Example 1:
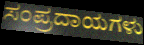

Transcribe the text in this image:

ಸಂಪ್ರದಾಯಗಳು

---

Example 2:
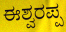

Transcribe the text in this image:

ಈಶ್ವರಪ್ಪ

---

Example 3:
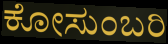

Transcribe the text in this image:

ಕೋಸುಂಬರಿ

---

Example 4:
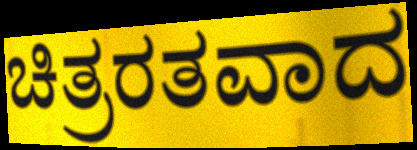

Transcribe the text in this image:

ಚಿತ್ರರತವಾದ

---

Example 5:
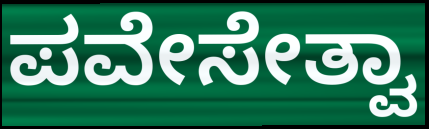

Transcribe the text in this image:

ಪವೇಸೇತ್ವಾ